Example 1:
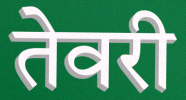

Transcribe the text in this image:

तेवरी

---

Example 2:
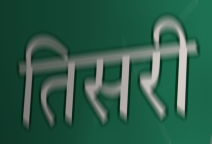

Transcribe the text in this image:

तिसरी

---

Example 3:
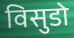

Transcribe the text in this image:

विसुडो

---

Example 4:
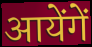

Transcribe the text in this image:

आयेंगें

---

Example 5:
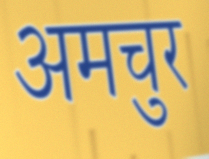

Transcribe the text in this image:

अमचुर